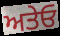
ਅਤੇਓ